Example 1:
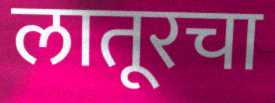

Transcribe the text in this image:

लातूरचा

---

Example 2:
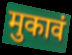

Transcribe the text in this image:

मुकावं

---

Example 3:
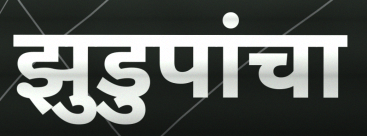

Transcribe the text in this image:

झुडुपांचा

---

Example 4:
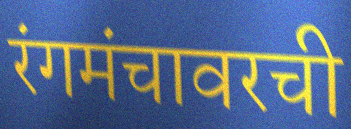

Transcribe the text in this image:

रंगमंचावरची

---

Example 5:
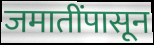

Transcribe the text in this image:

जमातींपासून